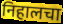
निहालचा